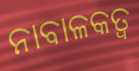
ନାବାଳକତ୍ଵ